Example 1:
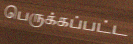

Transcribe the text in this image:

பெருக்கப்பட்ட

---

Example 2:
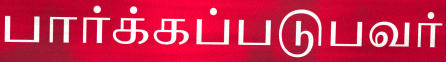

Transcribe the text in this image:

பார்க்கப்படுபவர்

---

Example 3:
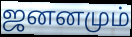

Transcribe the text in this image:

ஜனனமும்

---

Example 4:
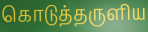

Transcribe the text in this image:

கொடுத்தருளிய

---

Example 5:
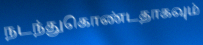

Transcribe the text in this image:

நடந்துகொண்டதாகவும்